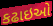
કઢાઇઓ